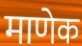
माणेक